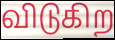
விடுகிற